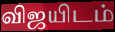
விஜயிடம்